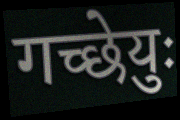
गच्छेयुः